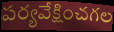
పర్యవేక్షించగల